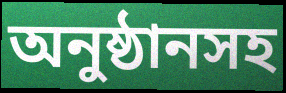
অনুষ্ঠানসহ